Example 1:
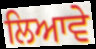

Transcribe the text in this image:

ਲਿਆਵੇ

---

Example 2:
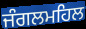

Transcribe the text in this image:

ਜੰਗਲਮਹਿਲ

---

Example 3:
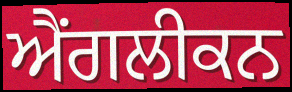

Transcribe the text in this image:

ਐਂਗਲੀਕਨ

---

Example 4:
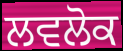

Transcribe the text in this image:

ਲਵਲੋਕ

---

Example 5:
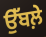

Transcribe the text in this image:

ਉੱਬਲ਼ੇ